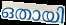
ഒതായി